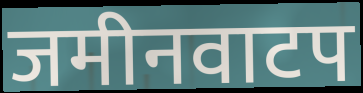
जमीनवाटप